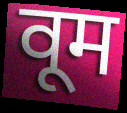
वूम